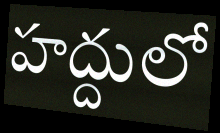
హద్దులో